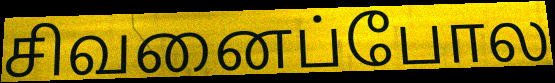
சிவனைப்போல